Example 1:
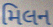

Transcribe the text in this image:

મિલન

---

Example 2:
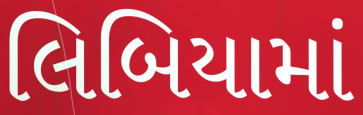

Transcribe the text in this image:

લિબિયામાં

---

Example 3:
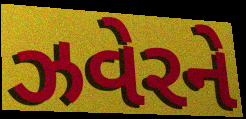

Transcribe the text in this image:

ઝવેરને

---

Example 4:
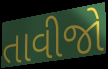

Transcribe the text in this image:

તાવીજો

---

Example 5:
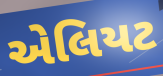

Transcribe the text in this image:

એલિયટ